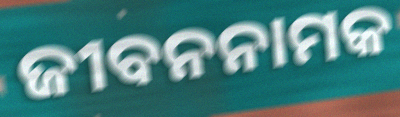
ଜୀବନନାମକ